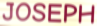
JOSEPH